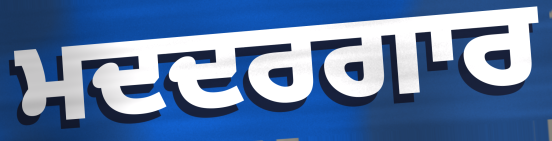
ਮਦਦਰਗਾਰ